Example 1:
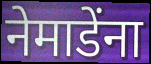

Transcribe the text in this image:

नेमाडेंना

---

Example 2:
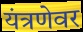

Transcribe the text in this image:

यंत्रणेवर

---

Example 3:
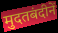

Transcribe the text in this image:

मुदतबंदीनें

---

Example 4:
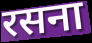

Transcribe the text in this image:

रसना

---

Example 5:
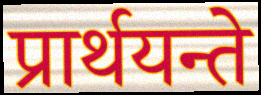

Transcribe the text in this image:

प्रार्थयन्ते